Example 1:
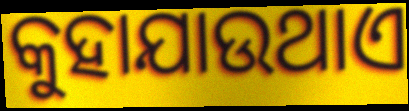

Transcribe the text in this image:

କୁହାଯାଉଥାଏ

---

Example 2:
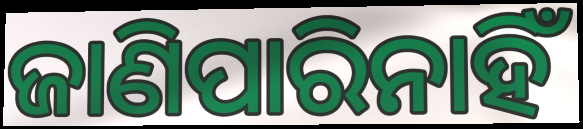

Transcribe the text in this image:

ଜାଣିପାରିନାହିଁ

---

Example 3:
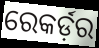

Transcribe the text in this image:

ରେକର୍ଡ଼ର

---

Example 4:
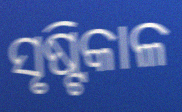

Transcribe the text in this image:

ସୃଷ୍ଟିକାଳ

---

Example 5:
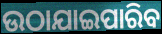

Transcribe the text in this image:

ଉଠାଯାଇପାରିବ